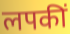
लपकीं